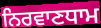
ਨਿਰਵਾਣਧਾਮ